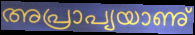
അപ്രാപ്യയാണു്